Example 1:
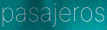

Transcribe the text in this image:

pasajeros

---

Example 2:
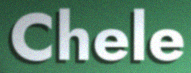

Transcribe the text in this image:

Chele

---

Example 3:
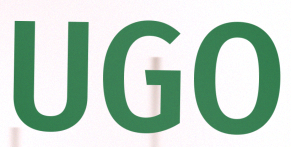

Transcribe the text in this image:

UGO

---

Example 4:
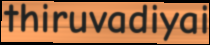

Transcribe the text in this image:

thiruvadiyai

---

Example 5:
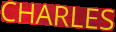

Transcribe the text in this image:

CHARLES